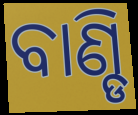
ବାଣ୍ଡି